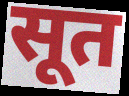
सूत